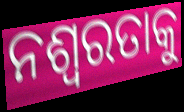
ନଶ୍ବରତାକୁ